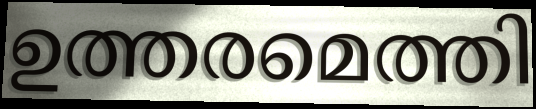
ഉത്തരമെത്തി